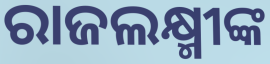
ରାଜଲକ୍ଷ୍ମୀଙ୍କ